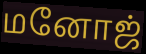
மனோஜ்